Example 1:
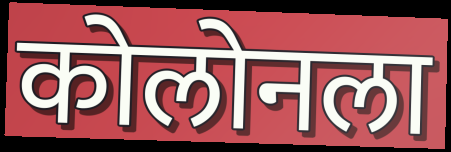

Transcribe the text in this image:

कोलोनला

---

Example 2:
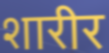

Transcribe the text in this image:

शारीर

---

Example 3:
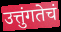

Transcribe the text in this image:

उत्तुंगतेचं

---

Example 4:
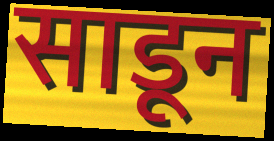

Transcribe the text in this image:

साडून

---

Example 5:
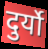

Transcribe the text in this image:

दुर्यो